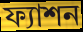
ফ্যাশন